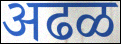
अढळ